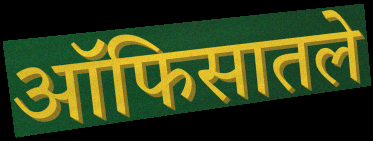
ऑफिसातले